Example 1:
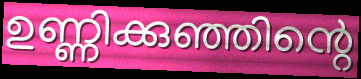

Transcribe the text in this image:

ഉണ്ണിക്കുഞ്ഞിന്റെ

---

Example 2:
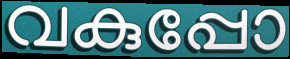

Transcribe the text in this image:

വകുപ്പോ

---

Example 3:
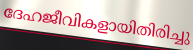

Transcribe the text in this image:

ദേഹജീവികളായിതിരിച്ചു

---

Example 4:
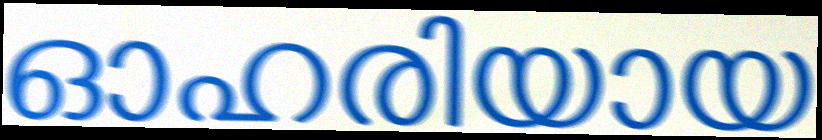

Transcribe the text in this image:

ഓഹരിയായ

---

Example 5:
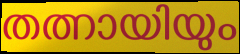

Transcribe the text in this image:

തത്നായിയും